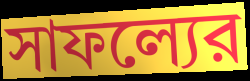
সাফল্যের